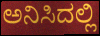
ಅನಿಸಿದಲ್ಲಿ